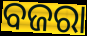
ବଜରା